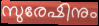
സുരേഷിനും